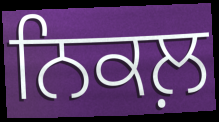
ਨਿਕਲ਼